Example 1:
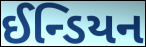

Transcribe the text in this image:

ઈન્ડિયન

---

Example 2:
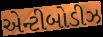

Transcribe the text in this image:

એન્ટીબોડીઝ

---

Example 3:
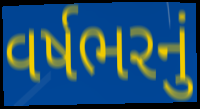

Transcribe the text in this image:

વર્ષભરનું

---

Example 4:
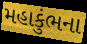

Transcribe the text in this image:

મહાકુંભના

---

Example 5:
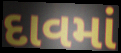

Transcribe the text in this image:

દાવમાં